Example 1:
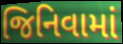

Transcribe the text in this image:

જિનિવામાં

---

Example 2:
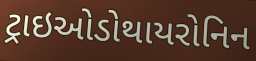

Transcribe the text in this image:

ટ્રાઇઓડોથાયરોનિન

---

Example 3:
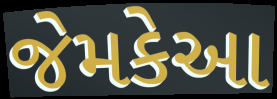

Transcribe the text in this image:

જેમકેઆ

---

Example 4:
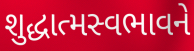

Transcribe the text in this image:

શુદ્ધાત્મસ્વભાવને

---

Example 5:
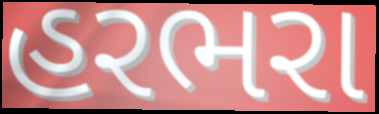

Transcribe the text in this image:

હરભરા